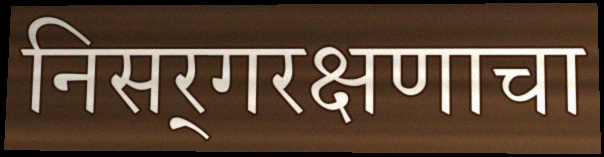
निसर्गरक्षणाचा